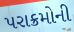
પરાક્રમોની